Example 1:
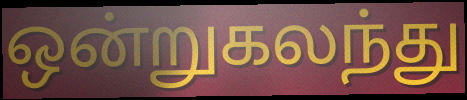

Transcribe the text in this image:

ஒன்றுகலந்து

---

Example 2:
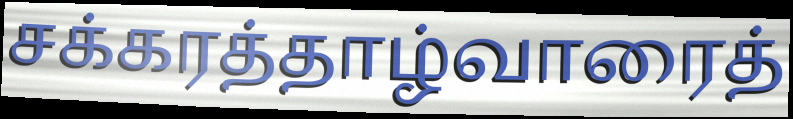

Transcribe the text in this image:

சக்கரத்தாழ்வாரைத்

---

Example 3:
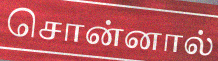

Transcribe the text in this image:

சொன்னால்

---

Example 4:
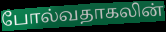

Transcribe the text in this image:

போல்வதாகலின்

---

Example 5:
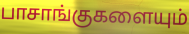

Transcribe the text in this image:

பாசாங்குகளையும்